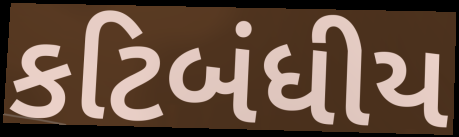
કટિબંધીય